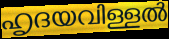
ഹൃദയവിള്ളൽ